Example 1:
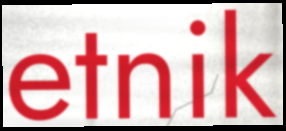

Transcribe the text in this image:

etnik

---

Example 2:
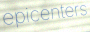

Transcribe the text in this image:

epicenters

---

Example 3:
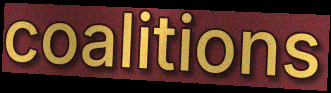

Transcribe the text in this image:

coalitions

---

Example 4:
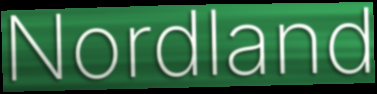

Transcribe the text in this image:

Nordland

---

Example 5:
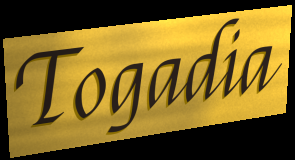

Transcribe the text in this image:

Togadia